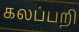
கலப்பறி